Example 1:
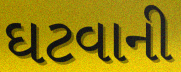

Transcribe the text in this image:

ઘટવાની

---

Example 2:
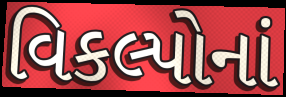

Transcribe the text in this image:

વિકલ્પોનાં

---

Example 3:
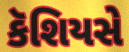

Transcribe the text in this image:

કૅશિયસે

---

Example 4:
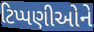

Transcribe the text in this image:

ટિપ્પણીઓને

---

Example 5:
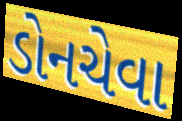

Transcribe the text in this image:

ડોનચેવા